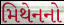
મિથેનનો